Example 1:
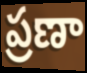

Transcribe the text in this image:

ప్రణా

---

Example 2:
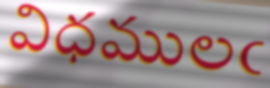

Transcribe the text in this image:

విధములఁ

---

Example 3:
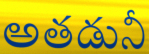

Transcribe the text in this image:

అతడునీ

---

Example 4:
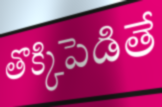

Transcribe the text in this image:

తొక్కిపెడితే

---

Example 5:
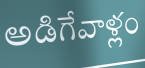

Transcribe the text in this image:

అడిగేవాళ్లం